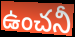
ఉంచనీ